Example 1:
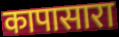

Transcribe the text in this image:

कापासारा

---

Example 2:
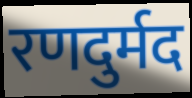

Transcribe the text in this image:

रणदुर्मद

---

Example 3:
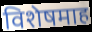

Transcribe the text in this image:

विशेषमाह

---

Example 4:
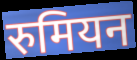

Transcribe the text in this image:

रुमियन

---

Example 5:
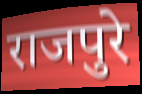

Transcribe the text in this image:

राजपुरे